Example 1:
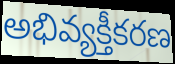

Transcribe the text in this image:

అభివ్యక్తీకరణ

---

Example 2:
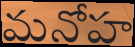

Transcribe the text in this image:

మనోహ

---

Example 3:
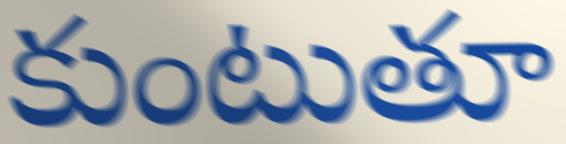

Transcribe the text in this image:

కుంటుతూ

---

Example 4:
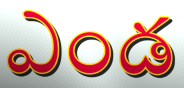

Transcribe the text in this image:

ఎండ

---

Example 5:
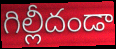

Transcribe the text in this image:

గిల్లీదండా